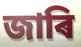
জাৰি